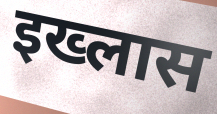
इख्लास